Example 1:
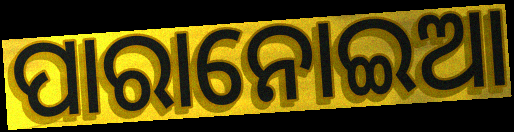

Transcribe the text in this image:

ପାରାନୋଇଆ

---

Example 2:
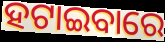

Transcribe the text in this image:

ହଟାଇବାରେ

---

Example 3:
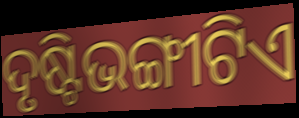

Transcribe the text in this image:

ଦୃଷ୍ଟିଭଙ୍ଗୀଟିଏ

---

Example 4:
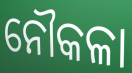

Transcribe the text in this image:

ନୌକଳା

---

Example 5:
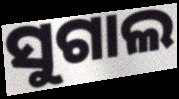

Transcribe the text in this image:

ସୁଗାଲ